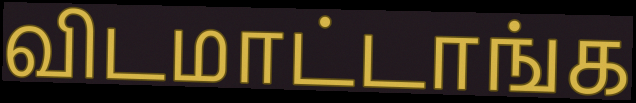
விடமாட்டாங்க